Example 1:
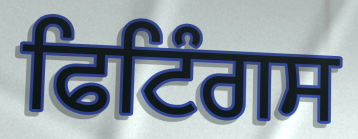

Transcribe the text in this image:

ਫਿਟਿੰਗਸ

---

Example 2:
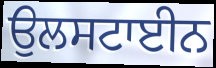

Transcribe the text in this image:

ਉਲਸਟਾਈਨ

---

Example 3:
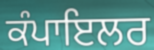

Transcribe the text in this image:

ਕੰਪਾਇਲਰ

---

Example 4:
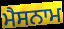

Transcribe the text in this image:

ਮੈਸਨਾਮ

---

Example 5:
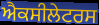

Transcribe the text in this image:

ਐਕਸੀਲੇਟਰਸ